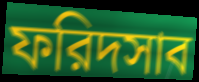
ফরিদসাব